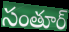
సంతూర్